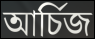
আর্চিজ